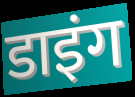
डाइंग